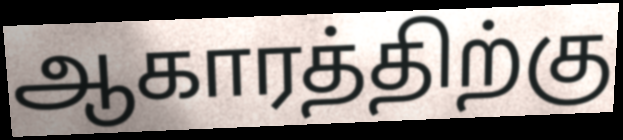
ஆகாரத்திற்கு